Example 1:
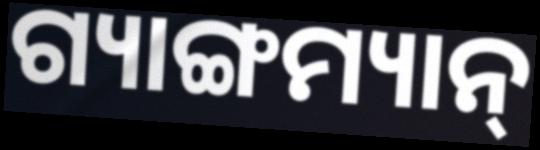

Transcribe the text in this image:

ଗ୍ୟାଙ୍ଗମ୍ୟାନ୍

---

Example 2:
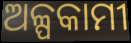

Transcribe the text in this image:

ଅଳ୍ପକାମୀ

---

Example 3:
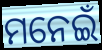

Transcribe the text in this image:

ମନେଇଁ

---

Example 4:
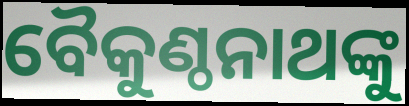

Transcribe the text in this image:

ବୈକୁଣ୍ଠନାଥଙ୍କୁ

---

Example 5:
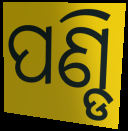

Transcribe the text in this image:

ପଣ୍ଡି